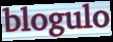
blogulo